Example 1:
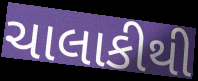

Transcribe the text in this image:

ચાલાકીથી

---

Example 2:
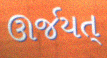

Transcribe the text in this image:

ઊર્જયત્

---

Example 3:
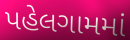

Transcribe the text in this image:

પહેલગામમાં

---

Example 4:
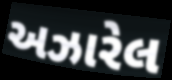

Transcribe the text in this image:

અઝારેલ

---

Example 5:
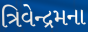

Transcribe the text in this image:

ત્રિવેન્દ્રમના